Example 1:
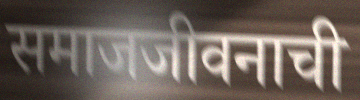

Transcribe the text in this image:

समाजजीवनाची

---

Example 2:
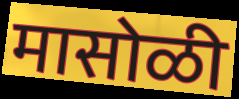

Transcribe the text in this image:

मासोळी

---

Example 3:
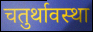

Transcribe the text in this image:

चतुर्थावस्था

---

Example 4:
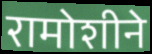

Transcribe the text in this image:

रामोशीने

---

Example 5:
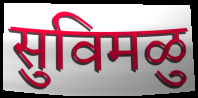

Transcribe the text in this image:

सुविमळु